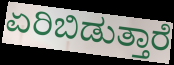
ಏರಿಬಿಡುತ್ತಾರೆ